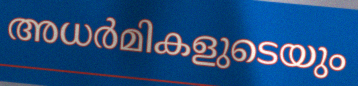
അധർമികളുടെയും